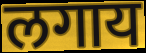
लगाय